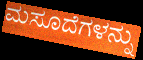
ಮಸೂದೆಗಳನ್ನು